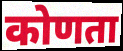
कोणता